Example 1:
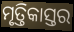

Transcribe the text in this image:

ମୃତ୍ତିକାସ୍ତର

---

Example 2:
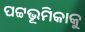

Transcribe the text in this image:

ପଟ୍ଟଭୂମିକାକୁ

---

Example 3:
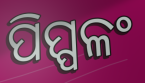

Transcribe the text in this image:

ପିପ୍ପଳଂ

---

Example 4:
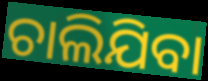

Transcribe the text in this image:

ଚାଲିଯିବା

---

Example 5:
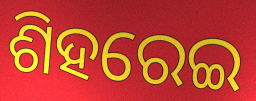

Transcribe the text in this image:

ଶିହରେଇ